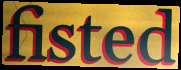
fisted